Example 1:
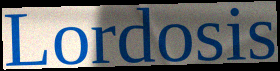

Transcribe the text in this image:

Lordosis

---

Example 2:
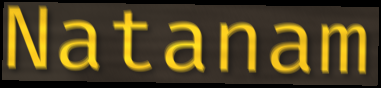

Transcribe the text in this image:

Natanam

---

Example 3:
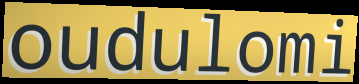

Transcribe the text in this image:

oudulomi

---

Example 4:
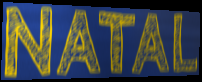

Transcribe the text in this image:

NATAL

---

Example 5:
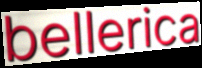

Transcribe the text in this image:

bellerica